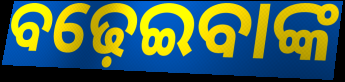
ବଢ଼େଇବାଙ୍କ